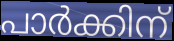
പാർക്കിന്